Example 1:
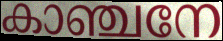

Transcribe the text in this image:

കാഞ്ചനേ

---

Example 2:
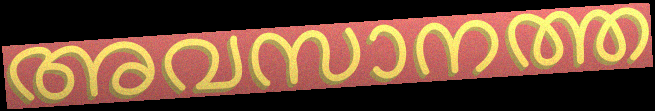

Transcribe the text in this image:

അവസാനത്ത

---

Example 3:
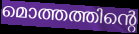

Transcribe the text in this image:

മൊത്തത്തിന്റെ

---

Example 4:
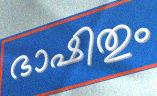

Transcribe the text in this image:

ഭാഷിതും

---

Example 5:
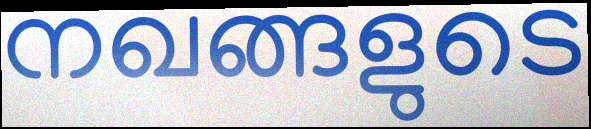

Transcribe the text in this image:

നഖങ്ങളുടെ